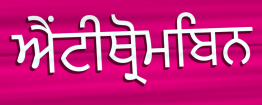
ਐਂਟੀਥ੍ਰੋਮਬਿਨ